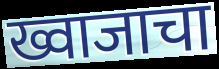
ख्वाजाचा